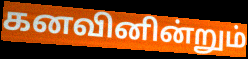
கனவினின்றும்